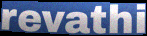
revathi